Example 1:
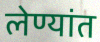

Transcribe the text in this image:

लेण्यांत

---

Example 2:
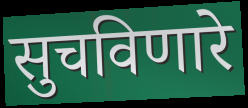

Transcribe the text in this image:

सुचविणारे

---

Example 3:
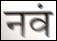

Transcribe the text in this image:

नवं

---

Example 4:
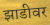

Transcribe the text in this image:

झाडीवर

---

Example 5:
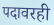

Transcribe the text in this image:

पदावरही